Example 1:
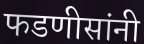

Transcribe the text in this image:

फडणीसांनी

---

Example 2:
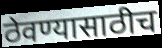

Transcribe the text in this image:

ठेवण्यासाठीच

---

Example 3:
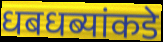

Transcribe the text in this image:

धबधब्यांकडे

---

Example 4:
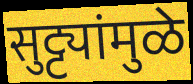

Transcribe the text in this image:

सुट्ट्यांमुळे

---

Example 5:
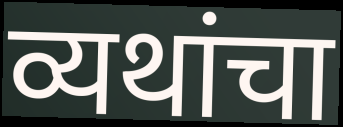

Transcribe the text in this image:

व्यथांचा